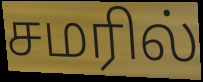
சமரில்